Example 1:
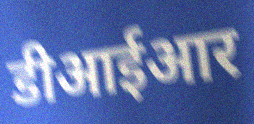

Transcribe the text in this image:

डीआईआर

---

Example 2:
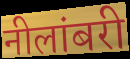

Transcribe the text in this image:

नीलांबरी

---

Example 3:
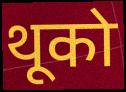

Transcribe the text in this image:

थूको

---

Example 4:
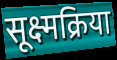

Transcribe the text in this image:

सूक्ष्मक्रिया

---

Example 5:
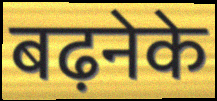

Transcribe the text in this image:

बढ़नेके